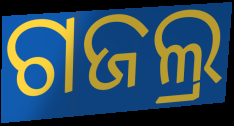
ଗଜଲ୍ର